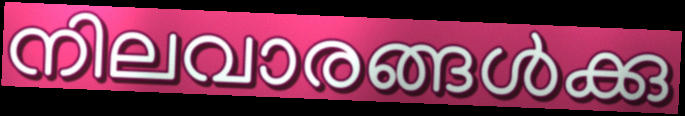
നിലവാരങ്ങൾക്കു